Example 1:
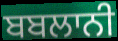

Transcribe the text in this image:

ਬਬਲਾਨੀ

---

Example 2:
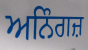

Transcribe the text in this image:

ਅਨਿੰਗਜ਼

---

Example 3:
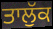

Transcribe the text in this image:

ਤਾਲੁੱਕ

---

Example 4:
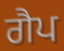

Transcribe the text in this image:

ਗੈਪ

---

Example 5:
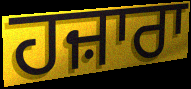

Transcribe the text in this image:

ਹਜ਼ਾਰਾ